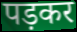
पड़कर